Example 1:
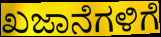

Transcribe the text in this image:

ಖಜಾನೆಗಳಿಗೆ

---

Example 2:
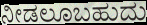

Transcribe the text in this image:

ನೀಡಲೂಬಹುದು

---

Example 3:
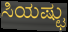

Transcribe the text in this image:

ಸಿಯಷ್ಟು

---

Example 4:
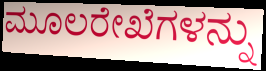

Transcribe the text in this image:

ಮೂಲರೇಖೆಗಳನ್ನು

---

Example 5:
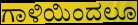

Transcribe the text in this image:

ಗಾಳಿಯಿಂದಲೂ